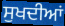
ਸੁਖਦੀਆਂ